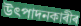
উৎপাদনকাৰীৰ